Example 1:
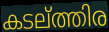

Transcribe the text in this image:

കടല്ത്തിര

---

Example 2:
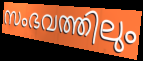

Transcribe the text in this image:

സംഭവത്തിലും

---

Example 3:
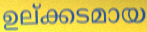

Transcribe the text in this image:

ഉല്ക്കടമായ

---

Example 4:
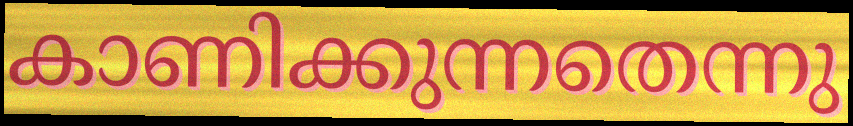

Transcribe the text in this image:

കാണിക്കുന്നതെന്നു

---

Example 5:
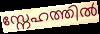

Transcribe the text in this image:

സ്നേഹത്തിൽ